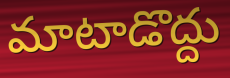
మాటాడొద్దు